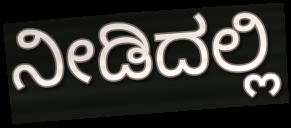
ನೀಡಿದಲ್ಲಿ